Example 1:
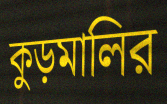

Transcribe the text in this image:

কুড়মালির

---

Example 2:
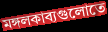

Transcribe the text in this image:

মঙ্গলকাব্যগুলোতে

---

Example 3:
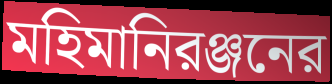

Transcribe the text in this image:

মহিমানিরঞ্জনের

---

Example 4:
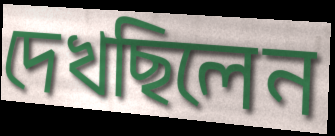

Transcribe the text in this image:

দেখছিলেন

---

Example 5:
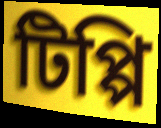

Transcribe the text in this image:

টিপ্পি